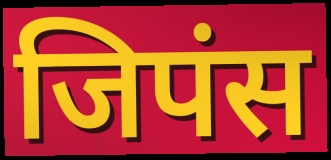
जिपंस